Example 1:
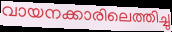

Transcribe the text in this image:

വായനക്കാരിലെത്തിച്ചു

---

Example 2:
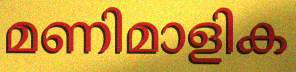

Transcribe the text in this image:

മണിമാളിക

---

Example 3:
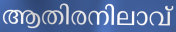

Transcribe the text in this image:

ആതിരനിലാവ്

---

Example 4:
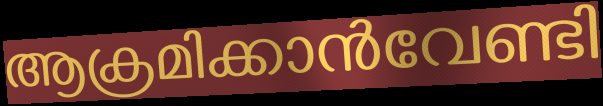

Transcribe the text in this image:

ആക്രമിക്കാൻവേണ്ടി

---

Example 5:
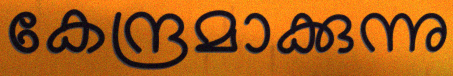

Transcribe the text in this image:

കേന്ദ്രമാക്കുന്നു